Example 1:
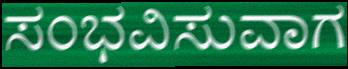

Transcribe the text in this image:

ಸಂಭವಿಸುವಾಗ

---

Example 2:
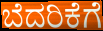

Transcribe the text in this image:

ಬೆದರಿಕೆಗೆ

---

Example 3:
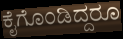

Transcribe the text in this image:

ಕೈಗೊಂಡಿದ್ದರೂ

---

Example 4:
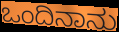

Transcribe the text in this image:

ಒಂದಿನಾನು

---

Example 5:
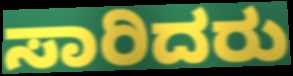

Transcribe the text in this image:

ಸಾರಿದರು